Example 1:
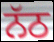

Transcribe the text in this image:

ਨੱਠ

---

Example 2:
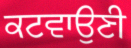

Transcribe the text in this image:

ਕਟਵਾਉਣੀ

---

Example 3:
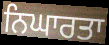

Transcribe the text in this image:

ਨਿਘਾਰਤਾ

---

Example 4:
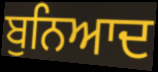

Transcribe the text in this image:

ਬੁਨਿਆਦ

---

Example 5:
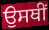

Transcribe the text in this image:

ਉਸਥੀਂ